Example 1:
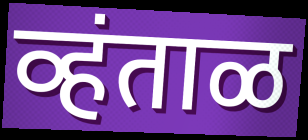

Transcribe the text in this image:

व्हंताळ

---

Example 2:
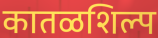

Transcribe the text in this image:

कातळशिल्प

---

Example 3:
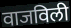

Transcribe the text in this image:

वाजविली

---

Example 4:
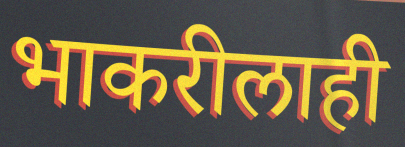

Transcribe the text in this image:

भाकरीलाही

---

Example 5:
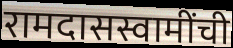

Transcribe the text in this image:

रामदासस्वामींची